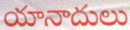
యానాదులు